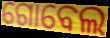
ଗୋବେଲ